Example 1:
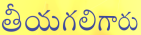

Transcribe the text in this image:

తీయగలిగారు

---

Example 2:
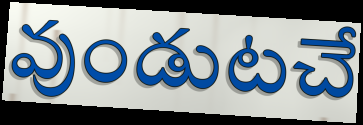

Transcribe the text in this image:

వుండుటచే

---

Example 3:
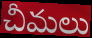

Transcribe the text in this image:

చీమలు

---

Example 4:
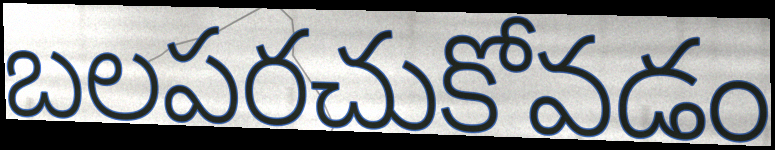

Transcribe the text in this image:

బలపరచుకోవడం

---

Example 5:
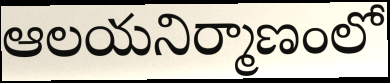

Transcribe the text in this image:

ఆలయనిర్మాణంలో